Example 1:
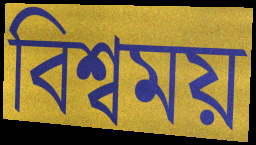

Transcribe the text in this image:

বিশ্বময়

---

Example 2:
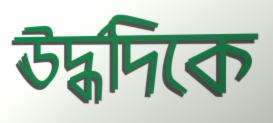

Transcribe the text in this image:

ঊর্দ্ধদিকে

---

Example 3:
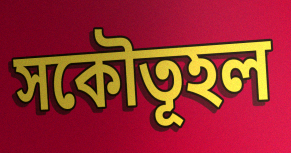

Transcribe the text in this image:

সকৌতূহল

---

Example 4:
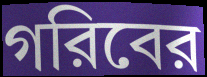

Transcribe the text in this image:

গরিবের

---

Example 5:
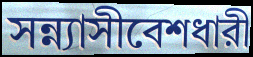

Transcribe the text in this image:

সন্ন্যাসীবেশধারী